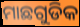
ମାଛଗୁଡିକ